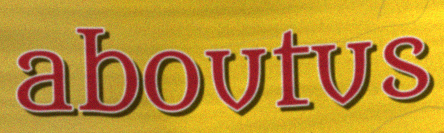
aboutus